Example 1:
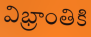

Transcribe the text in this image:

విభ్రాంతికి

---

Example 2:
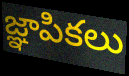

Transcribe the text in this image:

జ్ఞాపికలు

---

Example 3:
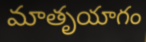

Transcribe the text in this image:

మాతృయాగం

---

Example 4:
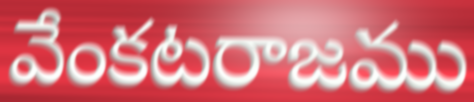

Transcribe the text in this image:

వేంకటరాజము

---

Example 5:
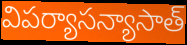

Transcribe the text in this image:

విపర్యాసన్యాసాత్